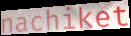
nachiket